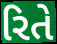
રિતે